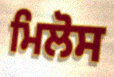
ਮਿਲੋਸ